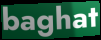
baghat